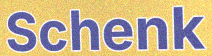
Schenk